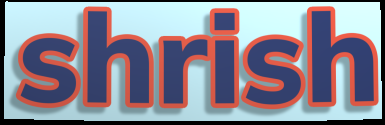
shrish